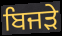
ਬਿਜੜੇ